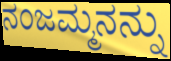
ನಂಜಮ್ಮನನ್ನು